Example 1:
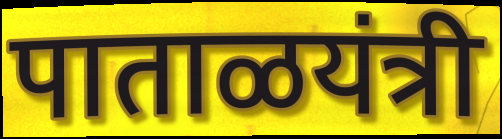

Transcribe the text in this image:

पाताळयंत्री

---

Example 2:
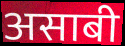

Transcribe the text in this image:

असाबी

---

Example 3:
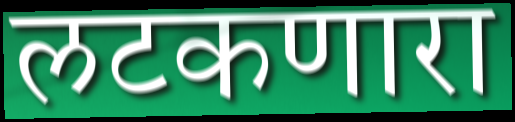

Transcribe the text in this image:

लटकणारा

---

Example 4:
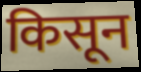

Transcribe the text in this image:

किसून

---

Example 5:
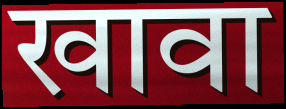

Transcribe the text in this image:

खावा